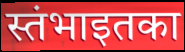
स्तंभाइतका